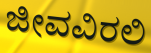
ಜೀವವಿರಲಿ